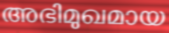
അഭിമുഖമായ